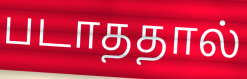
படாததால்